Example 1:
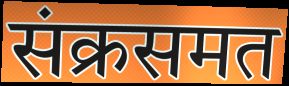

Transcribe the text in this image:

संक्रसमत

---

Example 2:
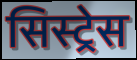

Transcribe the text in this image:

सिस्ट्रेस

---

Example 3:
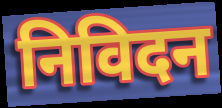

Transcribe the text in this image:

निविदन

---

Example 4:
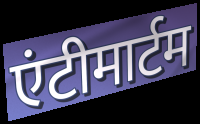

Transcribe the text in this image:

एंटीमार्टम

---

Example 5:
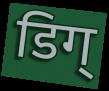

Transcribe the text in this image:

डिग्